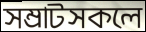
সম্ৰাটসকলে